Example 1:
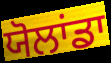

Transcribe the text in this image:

ਯੋਲਾਂਡਾ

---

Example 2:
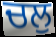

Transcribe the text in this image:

ਚਲੁ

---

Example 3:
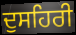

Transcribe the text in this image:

ਦੁਸਹਿਰੀ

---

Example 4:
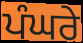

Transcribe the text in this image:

ਪੰਘਰੇ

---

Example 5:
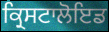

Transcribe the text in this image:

ਕ੍ਰਿਸਟਾਲੋਇਡ